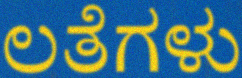
ಲತೆಗಳು